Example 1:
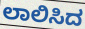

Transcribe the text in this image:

ಲಾಲಿಸಿದ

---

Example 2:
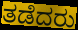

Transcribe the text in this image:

ತಡೆದರು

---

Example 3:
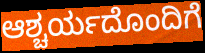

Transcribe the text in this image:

ಆಶ್ಚರ್ಯದೊಂದಿಗೆ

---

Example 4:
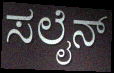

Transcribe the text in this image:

ಸಲೈನ್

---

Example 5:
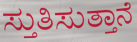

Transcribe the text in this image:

ಸ್ತುತಿಸುತ್ತಾನೆ